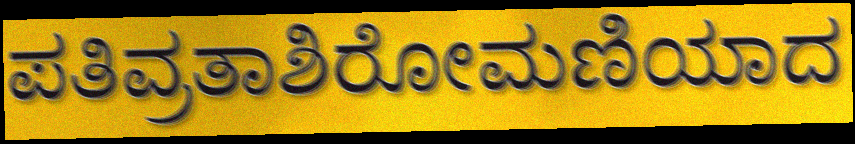
ಪತಿವ್ರತಾಶಿರೋಮಣಿಯಾದ